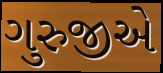
ગુરુજીએ